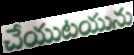
చేయుటయును